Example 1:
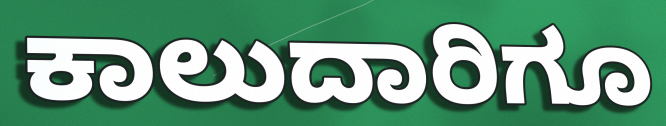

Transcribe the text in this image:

ಕಾಲುದಾರಿಗೂ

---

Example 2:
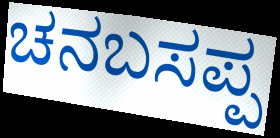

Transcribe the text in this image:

ಚನಬಸಪ್ಪ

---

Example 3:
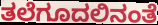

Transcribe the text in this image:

ತಲೆಗೂದಲಿನಂತೆ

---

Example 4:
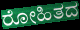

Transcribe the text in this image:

ರೋಹಿತದ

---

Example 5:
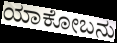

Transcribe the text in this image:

ಯಾಕೋಬನು